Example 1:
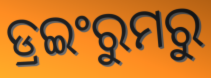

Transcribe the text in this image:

ଡ୍ରଇଂରୁମରୁ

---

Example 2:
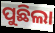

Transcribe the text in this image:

ପୁଛିଲା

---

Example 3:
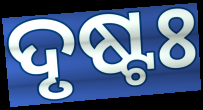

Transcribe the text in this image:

ଦୃଷ୍ଟଃ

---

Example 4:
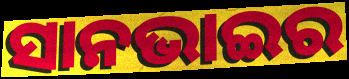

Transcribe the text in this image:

ସାନଭାଇର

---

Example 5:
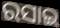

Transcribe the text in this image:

ରସାଇ